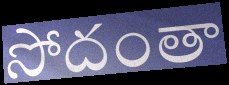
సోదంతా